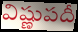
విష్ణుపదీ